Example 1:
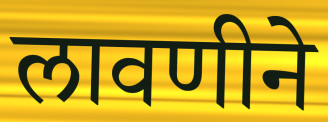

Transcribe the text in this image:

लावणीने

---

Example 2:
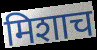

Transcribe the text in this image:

मिशाच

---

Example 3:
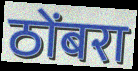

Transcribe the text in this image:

ठोंबरा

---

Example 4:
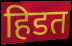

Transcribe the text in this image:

हिडत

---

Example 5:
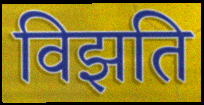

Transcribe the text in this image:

विझति